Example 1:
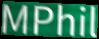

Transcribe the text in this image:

MPhil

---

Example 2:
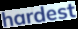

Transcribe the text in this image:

hardest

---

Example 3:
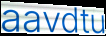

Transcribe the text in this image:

aavdtu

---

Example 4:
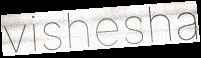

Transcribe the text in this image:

vishesha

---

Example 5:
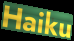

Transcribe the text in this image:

Haiku